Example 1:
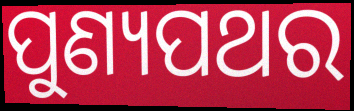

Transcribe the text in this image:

ପୁଣ୍ୟପଥର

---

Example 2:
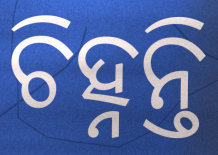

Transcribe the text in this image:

ଚିହ୍ନନ୍ତି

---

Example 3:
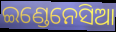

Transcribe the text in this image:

ଇଣ୍ଡେନେସିଆ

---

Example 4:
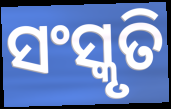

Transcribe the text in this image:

ସଂସ୍କୃତି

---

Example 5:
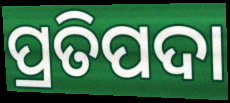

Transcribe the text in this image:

ପ୍ରତିପଦା